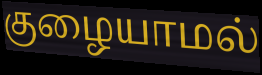
குழையாமல்